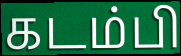
கடம்பி